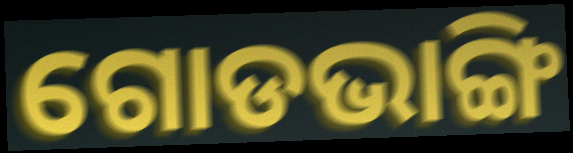
ଗୋଡଭାଙ୍ଗି